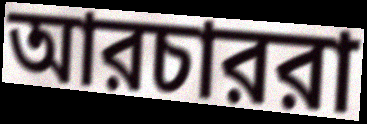
আরচাররা